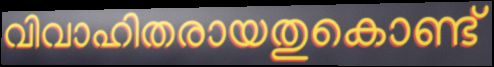
വിവാഹിതരായതുകൊണ്ട്